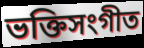
ভক্তিসংগীত